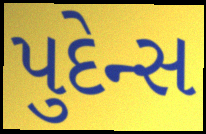
પુદેન્સ